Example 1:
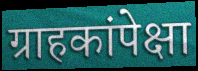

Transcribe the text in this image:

ग्राहकांपेक्षा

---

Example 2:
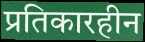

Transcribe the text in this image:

प्रतिकारहीन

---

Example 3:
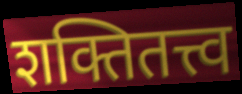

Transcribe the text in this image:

शक्तितत्त्व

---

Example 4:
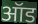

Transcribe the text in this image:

ऑड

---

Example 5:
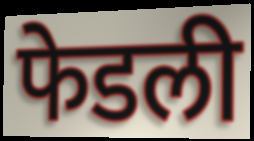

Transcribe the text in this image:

फेडली